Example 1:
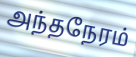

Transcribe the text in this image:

அந்தநேரம்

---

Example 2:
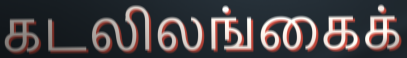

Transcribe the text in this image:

கடலிலங்கைக்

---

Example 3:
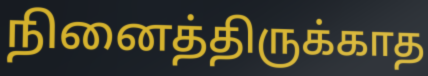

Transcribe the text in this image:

நினைத்திருக்காத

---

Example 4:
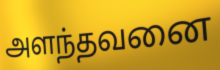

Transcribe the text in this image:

அளந்தவனை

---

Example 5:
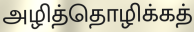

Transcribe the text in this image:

அழித்தொழிக்கத்